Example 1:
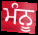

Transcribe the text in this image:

ਮੰਨੂ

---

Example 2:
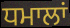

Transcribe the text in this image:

ਧਮਾਲਾਂ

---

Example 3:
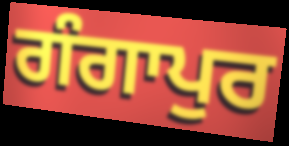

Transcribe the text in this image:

ਗੰਗਾਪੁਰ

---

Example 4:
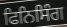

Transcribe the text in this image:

ਫਿਨਿਸਿੰਗ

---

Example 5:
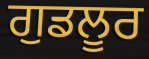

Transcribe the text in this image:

ਗੁਡਲੂਰ